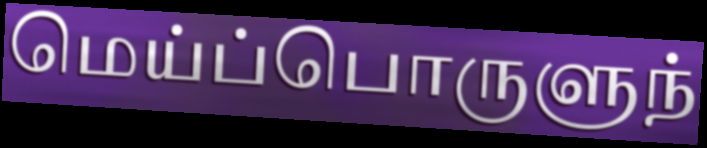
மெய்ப்பொருளுந்